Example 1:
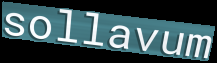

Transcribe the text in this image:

sollavum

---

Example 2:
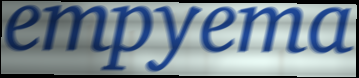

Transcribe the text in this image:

empyema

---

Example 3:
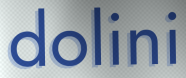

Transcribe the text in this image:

dolini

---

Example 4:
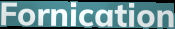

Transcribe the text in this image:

Fornication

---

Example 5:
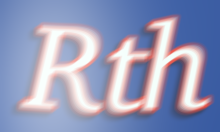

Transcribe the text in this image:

Rth